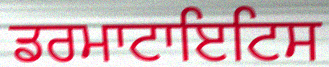
ਡਰਮਾਟਾਇਟਿਸ